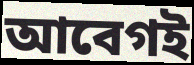
আবেগই